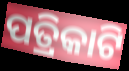
ପତ୍ରିକାଟି